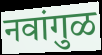
नवांगुळ